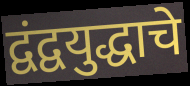
द्वंद्वयुद्धाचे